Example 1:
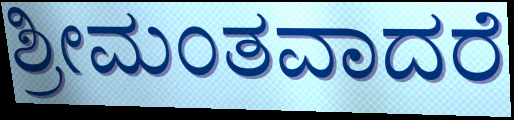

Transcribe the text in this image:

ಶ್ರೀಮಂತವಾದರೆ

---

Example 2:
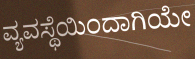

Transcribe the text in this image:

ವ್ಯವಸ್ಥೆಯಿಂದಾಗಿಯೇ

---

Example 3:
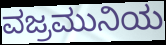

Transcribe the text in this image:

ವಜ್ರಮುನಿಯ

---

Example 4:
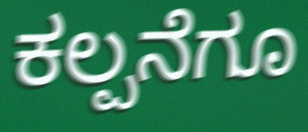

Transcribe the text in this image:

ಕಲ್ಪನೆಗೂ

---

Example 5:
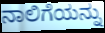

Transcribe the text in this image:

ನಾಲಿಗೆಯನ್ನು